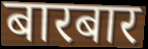
बारबार